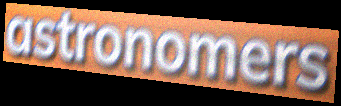
astronomers